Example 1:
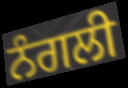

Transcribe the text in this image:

ਨੰਗਲੀ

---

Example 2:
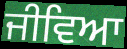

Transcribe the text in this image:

ਜੀਵਿਆ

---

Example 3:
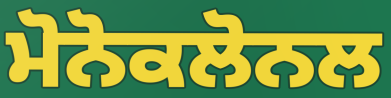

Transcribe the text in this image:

ਮੋਨੋਕਲੋਨਲ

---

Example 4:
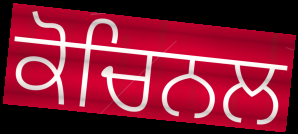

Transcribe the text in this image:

ਕੋਚਿਨਲ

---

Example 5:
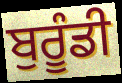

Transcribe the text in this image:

ਬੁਰੂੰਡੀ